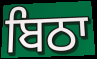
ਬਿਠਾ